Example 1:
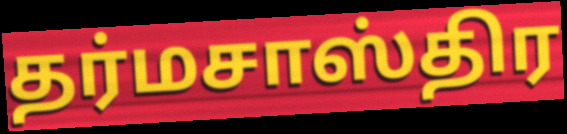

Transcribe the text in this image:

தர்மசாஸ்திர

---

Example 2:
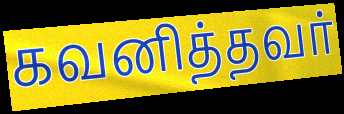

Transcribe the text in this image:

கவனித்தவர்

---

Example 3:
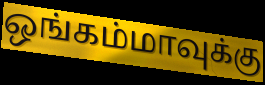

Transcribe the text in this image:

ஒங்கம்மாவுக்கு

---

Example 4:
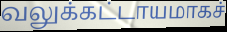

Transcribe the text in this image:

வலுக்கட்டாயமாகச்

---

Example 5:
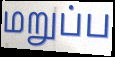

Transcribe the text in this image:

மறுப்ப